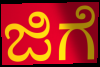
ಜಿಗೆ